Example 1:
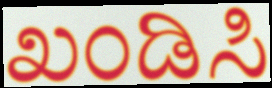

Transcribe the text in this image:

ಖಂಡಿಸಿ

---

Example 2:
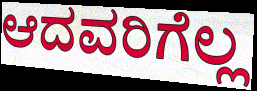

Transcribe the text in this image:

ಆದವರಿಗೆಲ್ಲ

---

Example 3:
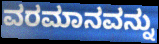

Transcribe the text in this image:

ವರಮಾನವನ್ನು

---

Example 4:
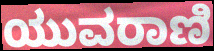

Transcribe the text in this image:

ಯುವರಾಣಿ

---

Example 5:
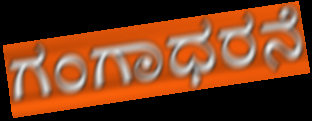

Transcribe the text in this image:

ಗಂಗಾಧರನೆ